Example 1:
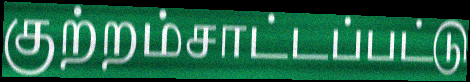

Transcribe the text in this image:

குற்றம்சாட்டப்பட்டு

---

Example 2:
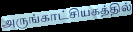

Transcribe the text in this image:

அருங்காட்சியகத்தில்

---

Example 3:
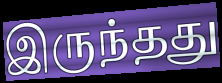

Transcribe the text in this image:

இருந்தது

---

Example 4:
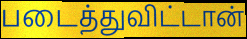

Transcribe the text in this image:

படைத்துவிட்டான்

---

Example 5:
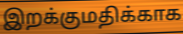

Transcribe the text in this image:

இறக்குமதிக்காக